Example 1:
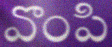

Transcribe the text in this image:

వొంపి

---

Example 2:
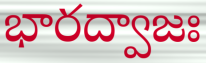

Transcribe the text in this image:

భారద్వాజః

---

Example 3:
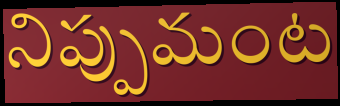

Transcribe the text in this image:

నిప్పుమంట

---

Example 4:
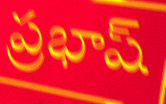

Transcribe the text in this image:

ప్రభాష్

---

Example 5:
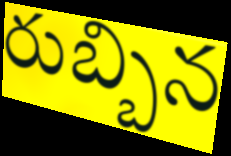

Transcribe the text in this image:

రుబ్బిన